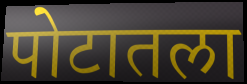
पोटातला